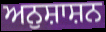
ਅਨੁਸ਼ਾਸ਼ਨ